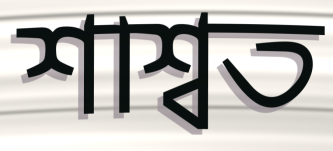
শাশ্বত